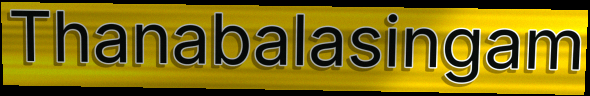
Thanabalasingam